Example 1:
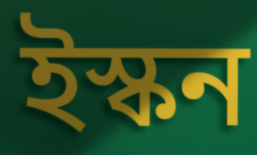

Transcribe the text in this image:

ইস্কন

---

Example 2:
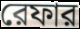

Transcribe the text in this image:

রেফার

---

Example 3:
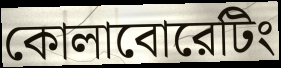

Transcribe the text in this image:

কোলাবোরেটিং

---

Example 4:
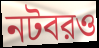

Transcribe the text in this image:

নটবরও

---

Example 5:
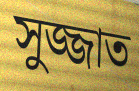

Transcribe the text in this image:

সুজ্জাত